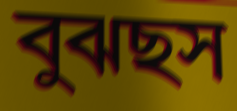
বুঝছস